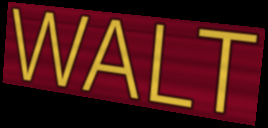
WALT